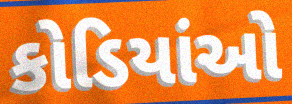
કોડિયાંઓ